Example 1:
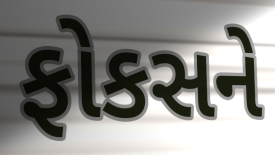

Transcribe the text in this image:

ફોકસને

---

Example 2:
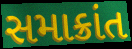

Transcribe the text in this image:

સમાક્રાંત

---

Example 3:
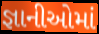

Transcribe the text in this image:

જ્ઞાનીઓમાં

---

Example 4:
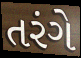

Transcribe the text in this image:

તરંગે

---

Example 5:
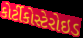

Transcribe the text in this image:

કોર્ટીકોસ્ટેરોઇડ